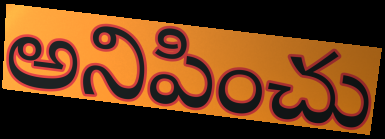
అనిపించు